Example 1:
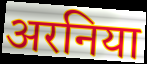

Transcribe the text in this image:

अरनिया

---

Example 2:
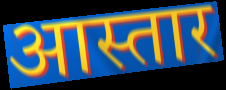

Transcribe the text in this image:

आस्तार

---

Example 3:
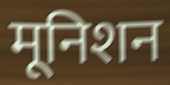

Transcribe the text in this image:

मूनिशन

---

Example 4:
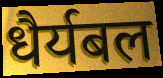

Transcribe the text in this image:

धैर्यबल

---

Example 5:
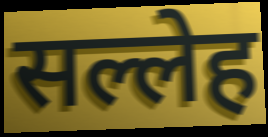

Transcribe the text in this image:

सल्लेह